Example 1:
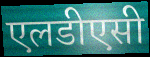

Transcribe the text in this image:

एलडीएसी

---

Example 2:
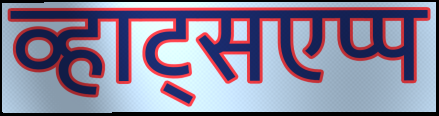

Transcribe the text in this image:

व्हाट्सएप्प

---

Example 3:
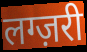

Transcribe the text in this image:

लग्ज़री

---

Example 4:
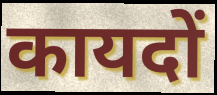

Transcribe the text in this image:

कायदों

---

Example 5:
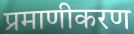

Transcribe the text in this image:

प्रमाणीकरण